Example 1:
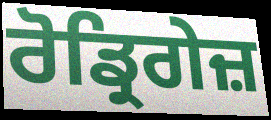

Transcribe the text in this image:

ਰੋਡ੍ਰਿਗੇਜ਼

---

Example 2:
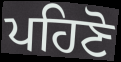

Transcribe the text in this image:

ਪਹਿਣੋ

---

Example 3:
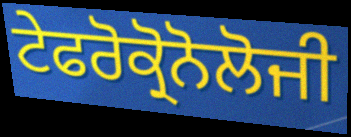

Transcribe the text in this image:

ਟੇਫਰੋਕ੍ਰੋਨੋਲੋਜੀ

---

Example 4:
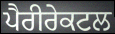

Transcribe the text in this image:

ਪੈਰੀਰੇਕਟਲ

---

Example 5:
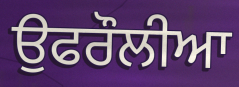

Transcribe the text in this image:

ਉਫਰੌਲੀਆ